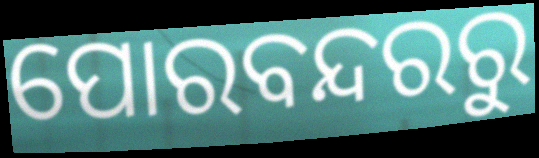
ପୋରବନ୍ଦରରୁ